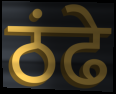
ठंढे